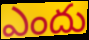
ఎందు